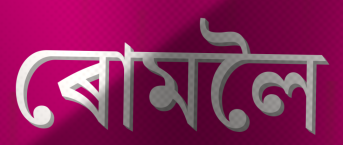
ৰোমলৈ